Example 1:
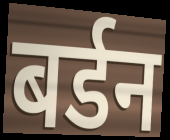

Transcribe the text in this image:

बर्डन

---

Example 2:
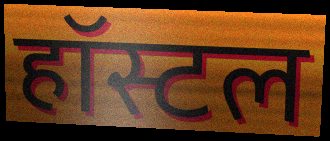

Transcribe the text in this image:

हॉस्टल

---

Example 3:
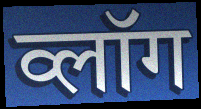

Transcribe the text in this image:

व्लॉग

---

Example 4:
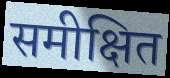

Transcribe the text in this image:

समीक्षित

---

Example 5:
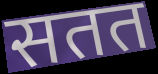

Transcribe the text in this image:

सतत